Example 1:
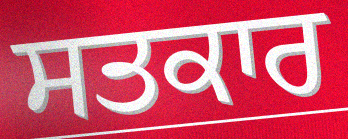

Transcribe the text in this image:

ਸਤਕਾਰ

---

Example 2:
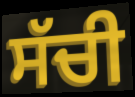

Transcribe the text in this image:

ਸੱਚੀ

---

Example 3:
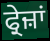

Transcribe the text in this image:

ਫ੍ਰੇਜ਼ਾਂ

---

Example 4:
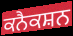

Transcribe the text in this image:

ਕਨੈਕਸ਼ਨ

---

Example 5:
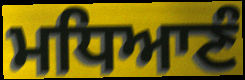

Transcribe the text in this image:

ਮਧਿਆਣੰ